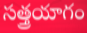
సత్త్రయాగం